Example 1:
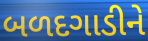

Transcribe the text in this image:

બળદગાડીને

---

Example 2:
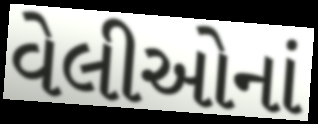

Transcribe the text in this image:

વેલીઓનાં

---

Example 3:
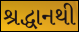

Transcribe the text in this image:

શ્રદ્ધાનથી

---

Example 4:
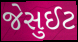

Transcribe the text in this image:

જેસુઈટ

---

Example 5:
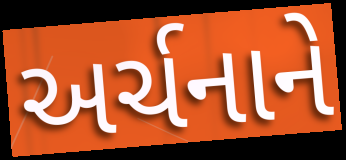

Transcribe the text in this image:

અર્ચનાને